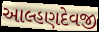
આલ્હણદેવજી